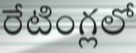
రేటింగ్లలో